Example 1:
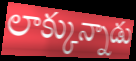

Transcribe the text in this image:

లాక్కున్నాడు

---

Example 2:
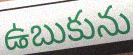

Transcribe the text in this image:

ఉబుకును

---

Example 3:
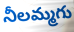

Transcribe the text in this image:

నీలమ్మగు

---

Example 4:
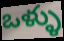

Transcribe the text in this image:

ఒళ్ళు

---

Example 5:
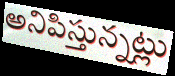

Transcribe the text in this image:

అనిపిస్తున్నట్లు